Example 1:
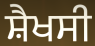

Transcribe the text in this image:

ਸ਼ੈਖਸੀ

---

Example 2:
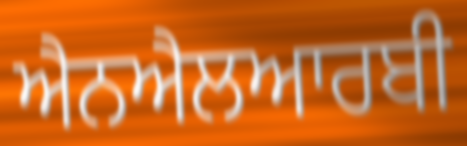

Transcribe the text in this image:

ਐਨਐਲਆਰਬੀ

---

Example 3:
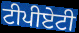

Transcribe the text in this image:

ਟੀਪੀਏਟੀ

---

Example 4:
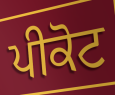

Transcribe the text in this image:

ਪੀਕੋਟ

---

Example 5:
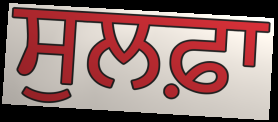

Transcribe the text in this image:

ਸੁਲਫ਼ਾ